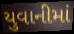
યુવાનીમાં